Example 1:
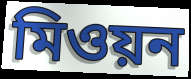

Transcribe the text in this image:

মিওয়ন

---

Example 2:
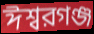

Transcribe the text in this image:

ঈশ্বরগঞ্জ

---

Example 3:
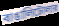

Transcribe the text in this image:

বাঙালিটোলার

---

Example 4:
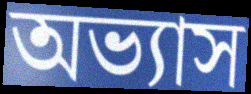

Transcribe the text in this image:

অভ্যাস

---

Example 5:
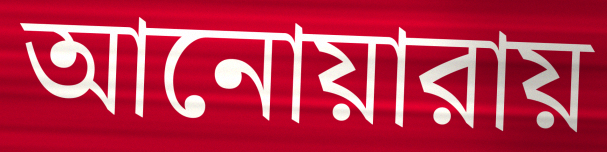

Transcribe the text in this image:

আনোয়ারায়